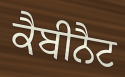
ਕੈਬੀਨੈਟ